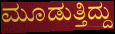
ಮೂಡುತ್ತಿದ್ದು